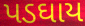
પડઘાય